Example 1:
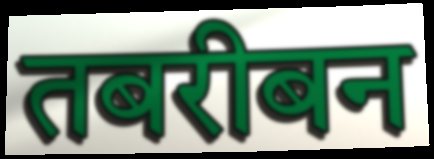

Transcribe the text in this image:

तबरीबन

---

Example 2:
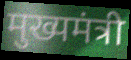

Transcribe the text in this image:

मुख्‍यमंत्री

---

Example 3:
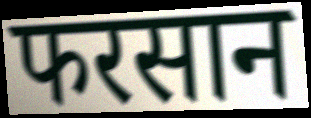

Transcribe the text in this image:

फरसान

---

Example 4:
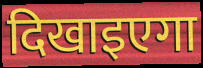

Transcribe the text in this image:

दिखाइएगा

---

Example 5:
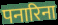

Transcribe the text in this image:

पनारिना